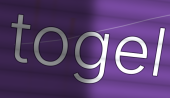
togel